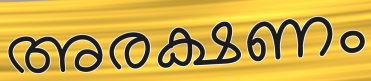
അരക്ഷണം